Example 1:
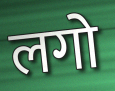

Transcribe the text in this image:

लगो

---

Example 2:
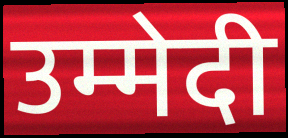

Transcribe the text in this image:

उम्मेदी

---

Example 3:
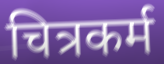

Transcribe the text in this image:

चित्रकर्म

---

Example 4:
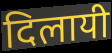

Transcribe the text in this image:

दिलायी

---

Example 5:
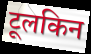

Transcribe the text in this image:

टूलकिन